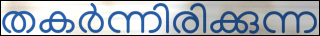
തകർന്നിരിക്കുന്ന